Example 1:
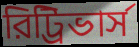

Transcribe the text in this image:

রিট্রিভার্স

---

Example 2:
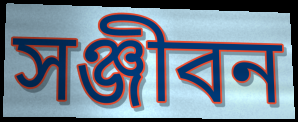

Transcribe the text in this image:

সঞ্জীবন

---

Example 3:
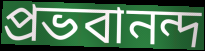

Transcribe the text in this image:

প্রভবানন্দ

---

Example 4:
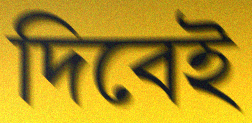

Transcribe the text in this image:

দিবেই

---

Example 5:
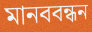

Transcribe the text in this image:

মানববন্ধন